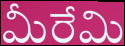
మీరేమి